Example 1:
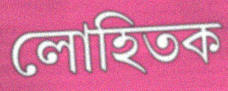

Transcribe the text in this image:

লোহিতক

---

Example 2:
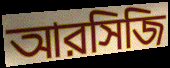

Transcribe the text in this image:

আরসিজি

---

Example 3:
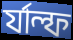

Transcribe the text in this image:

র্যাল্ফ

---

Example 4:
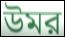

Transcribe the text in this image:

উমর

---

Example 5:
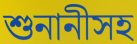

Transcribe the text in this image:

শুনানীসহ